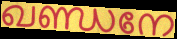
ഖണ്ഡനേ